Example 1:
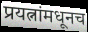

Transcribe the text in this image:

प्रयत्नांमधूनच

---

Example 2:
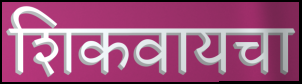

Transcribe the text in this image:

शिकवायचा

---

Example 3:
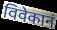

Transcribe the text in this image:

विवेकानं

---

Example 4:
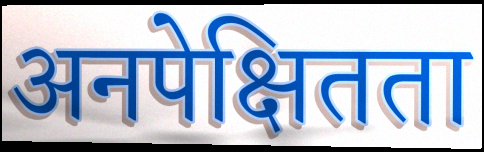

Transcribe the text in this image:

अनपेक्षितता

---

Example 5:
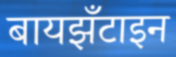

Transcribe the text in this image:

बायझँटाइन